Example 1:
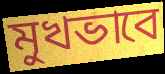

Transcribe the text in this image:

মুখভাবে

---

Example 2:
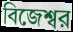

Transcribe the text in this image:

বিজেশ্বর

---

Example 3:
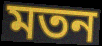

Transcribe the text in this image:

মতন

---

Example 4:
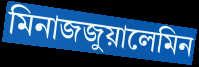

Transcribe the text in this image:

মিনাজজুয়ালেমিন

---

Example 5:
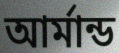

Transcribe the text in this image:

আর্মান্ড